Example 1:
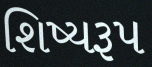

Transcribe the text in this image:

શિષ્યરૂપ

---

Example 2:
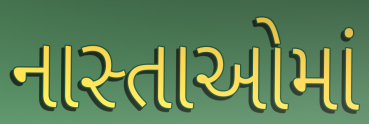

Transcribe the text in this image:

નાસ્તાઓમાં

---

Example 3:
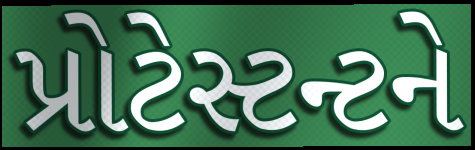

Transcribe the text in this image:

પ્રોટેસ્ટન્ટને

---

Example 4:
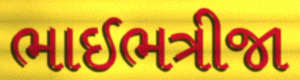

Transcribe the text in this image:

ભાઈભત્રીજા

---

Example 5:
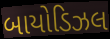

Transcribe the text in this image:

બાયોડિઝલ